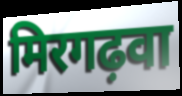
मिरगढ़वा